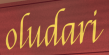
oludari